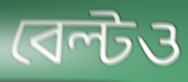
বেল্টও